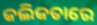
କଲିକତାରେ